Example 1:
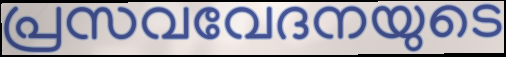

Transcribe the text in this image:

പ്രസവവേദനയുടെ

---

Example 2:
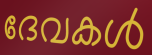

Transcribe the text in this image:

ദേവകൾ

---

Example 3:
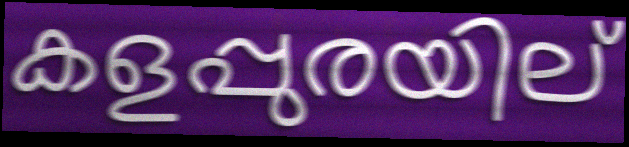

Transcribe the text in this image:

കളപ്പുരയില്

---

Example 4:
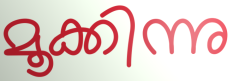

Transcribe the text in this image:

മൂക്കിന്നു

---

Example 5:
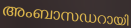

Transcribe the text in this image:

അംബാസഡറായി